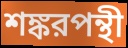
শঙ্করপন্থী